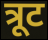
त्रूट